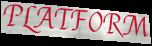
PLATFORM